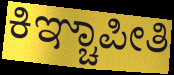
ಕಿಞ್ಚಾಪೀತಿ